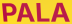
PALA